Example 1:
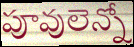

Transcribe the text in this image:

పూవులెన్నో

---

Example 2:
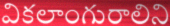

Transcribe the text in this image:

వికలాంగురాలిని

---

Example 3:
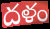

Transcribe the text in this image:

దళం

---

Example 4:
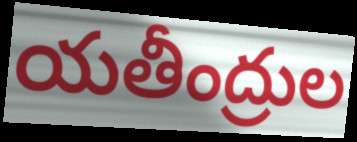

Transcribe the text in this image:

యతీంద్రుల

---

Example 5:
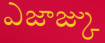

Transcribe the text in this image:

ఎజాజ్కు